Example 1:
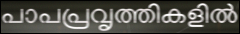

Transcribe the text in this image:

പാപപ്രവൃത്തികളിൽ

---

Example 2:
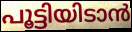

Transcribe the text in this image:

പൂട്ടിയിടാൻ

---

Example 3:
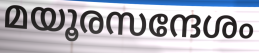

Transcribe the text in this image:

മയൂരസന്ദേശം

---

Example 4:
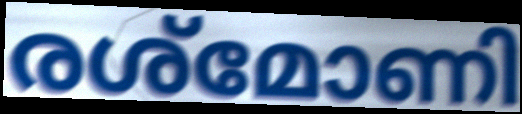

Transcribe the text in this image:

രശ്മോണി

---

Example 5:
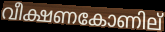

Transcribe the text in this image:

വീക്ഷണകോണില്